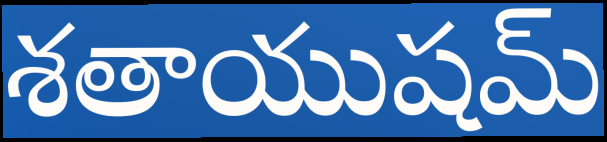
శతాయుషమ్